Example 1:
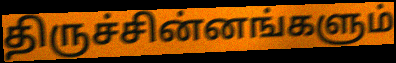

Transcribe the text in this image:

திருச்சின்னங்களும்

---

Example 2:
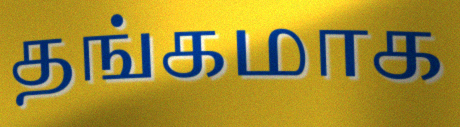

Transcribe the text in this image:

தங்கமாக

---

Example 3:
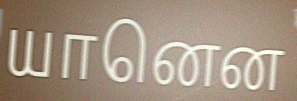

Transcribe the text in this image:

யானென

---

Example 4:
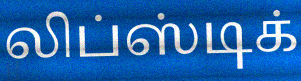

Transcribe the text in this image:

லிப்ஸ்டிக்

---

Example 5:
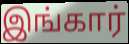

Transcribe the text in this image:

இங்கார்